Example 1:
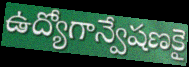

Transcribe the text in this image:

ఉద్యోగాన్వేషణకై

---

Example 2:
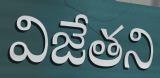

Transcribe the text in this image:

విజేతని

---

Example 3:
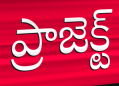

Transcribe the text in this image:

ప్రాజెక్ట్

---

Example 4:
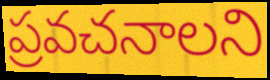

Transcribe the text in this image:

ప్రవచనాలని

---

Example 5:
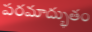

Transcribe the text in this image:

పరమాద్భుతం